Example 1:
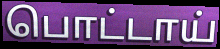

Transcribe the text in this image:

பொட்டாய்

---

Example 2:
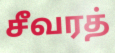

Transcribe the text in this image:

சீவரத்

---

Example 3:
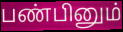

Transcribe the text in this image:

பண்பினும்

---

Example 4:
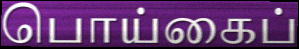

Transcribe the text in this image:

பொய்கைப்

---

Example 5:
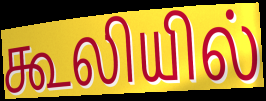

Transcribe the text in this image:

கூலியில்